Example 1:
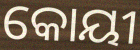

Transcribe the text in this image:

କୋୟୀ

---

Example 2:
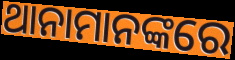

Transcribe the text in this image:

ଥାନାମାନଙ୍କରେ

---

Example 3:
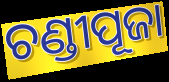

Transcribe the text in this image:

ଚଣ୍ଡୀପୂଜା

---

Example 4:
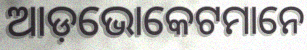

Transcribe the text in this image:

ଆଡ଼ଭୋକେଟମାନେ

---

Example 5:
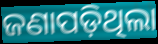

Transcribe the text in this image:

ଜଣାପଡ଼ିଥିଲା